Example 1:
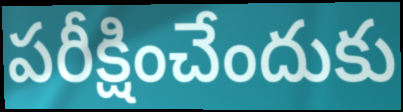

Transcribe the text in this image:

పరీక్షించేందుకు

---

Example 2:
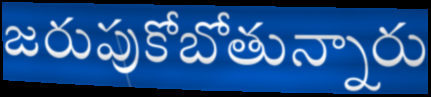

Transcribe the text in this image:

జరుపుకోబోతున్నారు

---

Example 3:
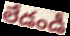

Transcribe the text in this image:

లేడండీ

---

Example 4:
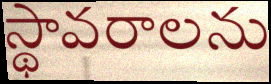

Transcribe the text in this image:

స్థావరాలను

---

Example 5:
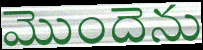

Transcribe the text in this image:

మొందెను